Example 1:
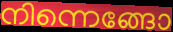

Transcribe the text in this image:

നിന്നെങ്ങോ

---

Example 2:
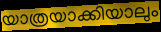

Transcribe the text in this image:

യാത്രയാക്കിയാലും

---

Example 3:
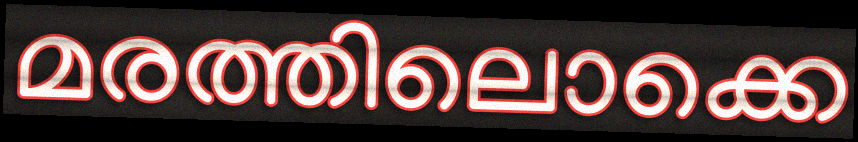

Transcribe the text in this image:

മരത്തിലൊക്കെ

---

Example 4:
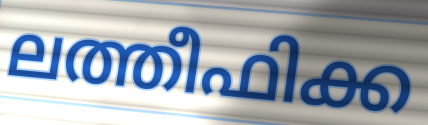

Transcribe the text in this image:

ലത്തീഫിക്ക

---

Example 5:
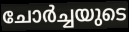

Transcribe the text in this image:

ചോർച്ചയുടെ